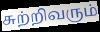
சுற்றிவரும்